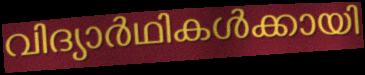
വിദ്യാർഥികൾക്കായി